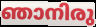
ഞാനിരു